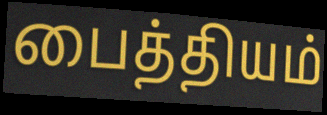
பைத்தியம்